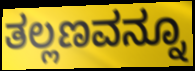
ತಲ್ಲಣವನ್ನೂ